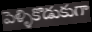
పెళ్ళికొడుకుగా